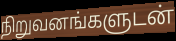
நிறுவனங்களுடன்